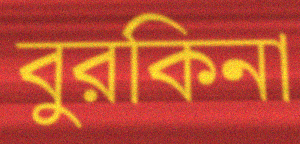
বুরকিনা